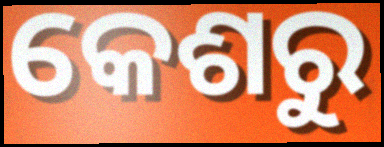
କେଶରୁ